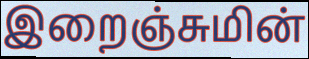
இறைஞ்சுமின்